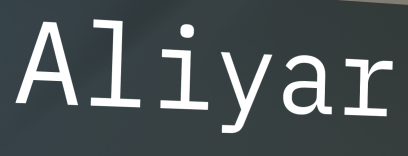
Aliyar